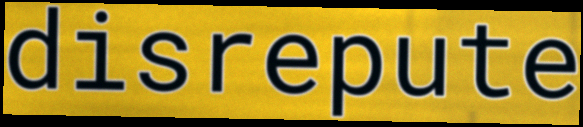
disrepute